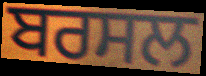
ਬਰਸਲ